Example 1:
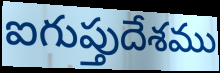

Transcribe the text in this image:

ఐగుప్తుదేశము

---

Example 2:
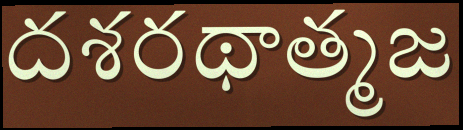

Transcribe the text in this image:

దశరథాత్మజ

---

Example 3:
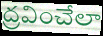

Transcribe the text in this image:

ద్రవించేలా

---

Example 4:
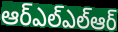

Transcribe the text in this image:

ఆర్ఎల్ఎల్ఆర్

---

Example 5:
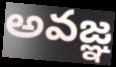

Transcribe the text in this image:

అవజ్ఞ